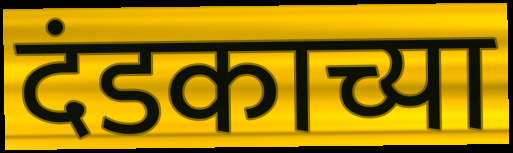
दंडकाच्या